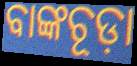
ବାଙ୍କଚୂଡ଼ା